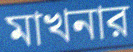
মাখনার